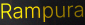
Rampura